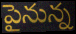
పైనున్న